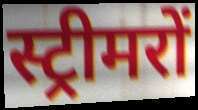
स्ट्रीमरों